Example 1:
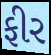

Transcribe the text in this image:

ફીર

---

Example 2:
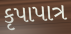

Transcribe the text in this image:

કૃપાપાત્ર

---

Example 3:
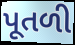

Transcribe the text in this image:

પૂતળી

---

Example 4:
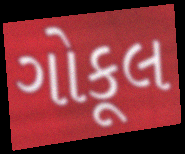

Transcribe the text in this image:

ગોકૂલ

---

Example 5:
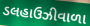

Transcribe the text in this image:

ડલહાઉઝીવાળા